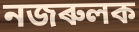
নজৰুলক